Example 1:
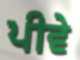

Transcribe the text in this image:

ਪੀਵੇ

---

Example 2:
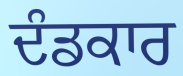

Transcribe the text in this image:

ਦੰਡਕਾਰ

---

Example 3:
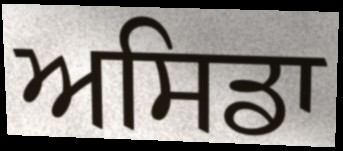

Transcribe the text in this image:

ਅਸਿਡਾ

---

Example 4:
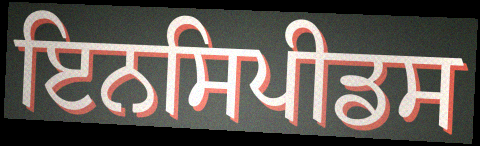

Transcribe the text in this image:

ਇਨਸਿਪੀਡਸ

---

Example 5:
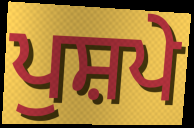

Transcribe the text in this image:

ਪੁਸ਼ਪੇ